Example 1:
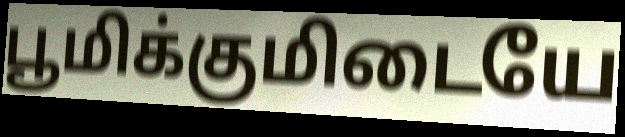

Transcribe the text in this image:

பூமிக்குமிடையே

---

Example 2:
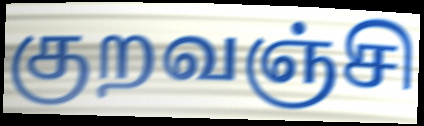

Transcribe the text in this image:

குறவஞ்சி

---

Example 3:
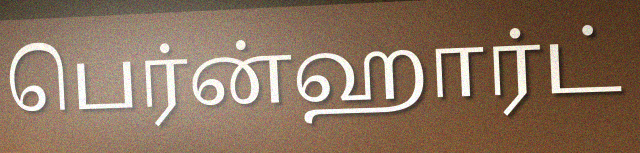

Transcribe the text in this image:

பெர்ன்ஹார்ட்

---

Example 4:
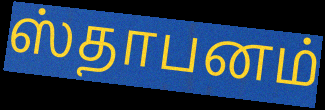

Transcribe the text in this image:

ஸ்தாபனம்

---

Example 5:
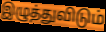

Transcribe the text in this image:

இழுத்துவிடும்